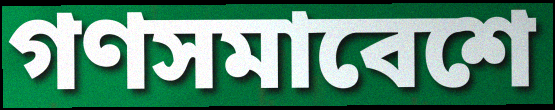
গণসমাবেশে